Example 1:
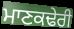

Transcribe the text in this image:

ਮਾਣਕਢੇਰੀ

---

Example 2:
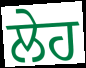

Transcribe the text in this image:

ਲੇਹ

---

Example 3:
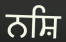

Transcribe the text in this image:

ਨਸ਼ਿ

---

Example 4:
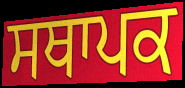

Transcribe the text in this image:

ਸਥਾਪਕ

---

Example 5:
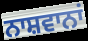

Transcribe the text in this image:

ਨਾਸ਼ਵਾਨਾਂ